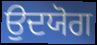
ਉਦਯੋਗ